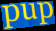
pup